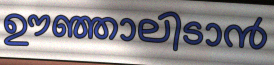
ഊഞ്ഞാലിടാൻ